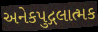
અનેકપુદ્ગલાત્મક